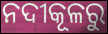
ନଦୀକୂଳରୁ